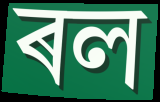
ৰল